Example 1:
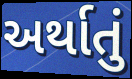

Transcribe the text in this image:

અર્થાતું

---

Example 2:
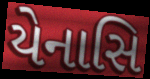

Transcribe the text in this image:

યેનાસિ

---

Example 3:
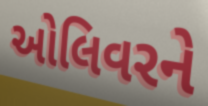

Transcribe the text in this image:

ઓલિવરને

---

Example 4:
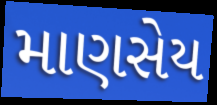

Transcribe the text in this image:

માણસેય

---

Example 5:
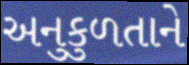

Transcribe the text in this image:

અનુકુળતાને